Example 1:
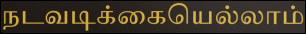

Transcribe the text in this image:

நடவடிக்கையெல்லாம்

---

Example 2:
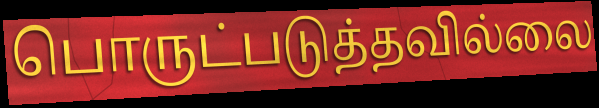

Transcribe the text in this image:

பொருட்படுத்தவில்லை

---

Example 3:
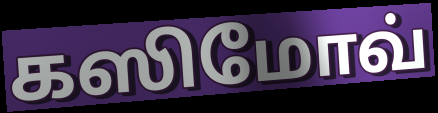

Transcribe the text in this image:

கஸிமோவ்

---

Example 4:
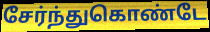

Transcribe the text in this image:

சேர்ந்துகொண்டே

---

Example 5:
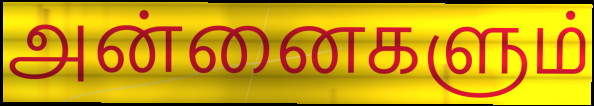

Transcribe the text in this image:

அன்னைகளும்